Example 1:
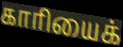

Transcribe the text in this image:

காரியைக்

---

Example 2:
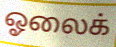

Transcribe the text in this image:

ஓலைக்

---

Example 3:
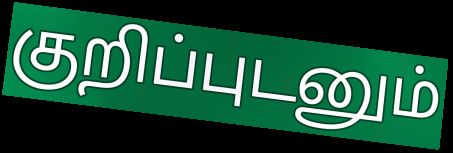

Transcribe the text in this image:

குறிப்புடனும்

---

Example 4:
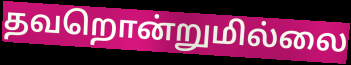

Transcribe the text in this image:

தவறொன்றுமில்லை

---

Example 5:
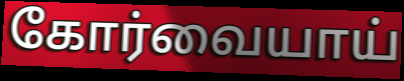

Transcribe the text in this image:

கோர்வையாய்